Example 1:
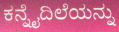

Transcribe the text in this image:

ಕನ್ನೈದಿಲೆಯನ್ನು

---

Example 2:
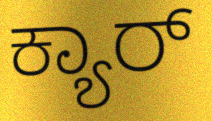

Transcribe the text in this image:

ಕ್ಯಾರ್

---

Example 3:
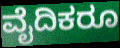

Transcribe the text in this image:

ವೈದಿಕರೂ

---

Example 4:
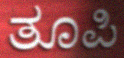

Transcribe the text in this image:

ತೂಪಿ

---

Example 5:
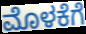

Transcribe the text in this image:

ಮೊಳಕೆಗೆ